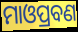
ମାଓପ୍ରବଣ